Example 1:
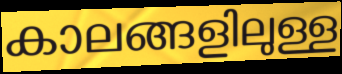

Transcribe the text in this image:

കാലങ്ങളിലുള്ള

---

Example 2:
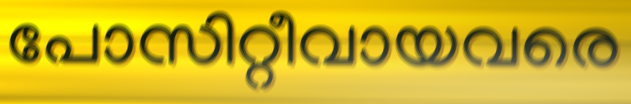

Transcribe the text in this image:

പോസിറ്റീവായവരെ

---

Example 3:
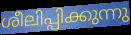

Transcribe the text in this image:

ശീലിപ്പിക്കുന്നു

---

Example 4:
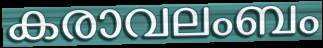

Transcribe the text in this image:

കരാവലംബം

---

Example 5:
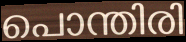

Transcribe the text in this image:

പൊന്തിരി